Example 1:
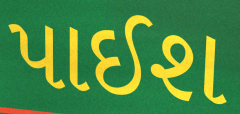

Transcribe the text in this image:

પાઈશ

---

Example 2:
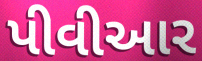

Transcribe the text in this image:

પીવીઆર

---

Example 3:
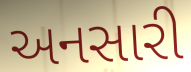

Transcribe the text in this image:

અનસારી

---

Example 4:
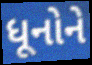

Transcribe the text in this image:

ધૂનોને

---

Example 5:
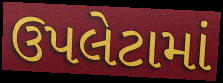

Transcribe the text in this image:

ઉપલેટામાં